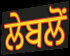
ਲੇਬਲੋਂ